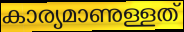
കാര്യമാണുള്ളത്